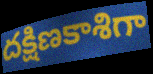
దక్షిణకాశిగా